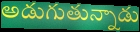
అడుగుతున్నాడు